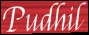
Pudhil